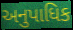
અનુપાધિક